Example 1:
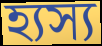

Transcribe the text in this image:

হ্যস্য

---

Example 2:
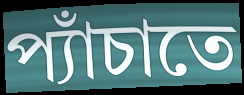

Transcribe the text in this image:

প্যাঁচাতে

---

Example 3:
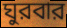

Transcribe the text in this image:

ঘুরবার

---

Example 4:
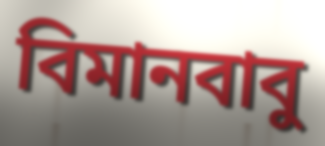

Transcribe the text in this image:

বিমানবাবু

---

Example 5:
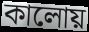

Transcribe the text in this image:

কালোয়